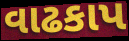
વાઢકાપ